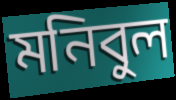
মনিবুল